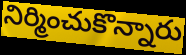
నిర్మించుకొన్నారు